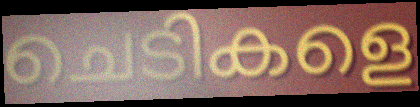
ചെടികളെ